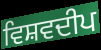
ਵਿਸ਼ਵਦੀਪ